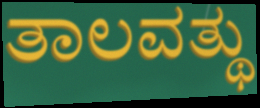
ತಾಲವತ್ಥು